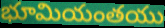
భూమియంతయు